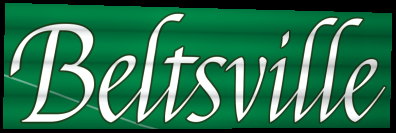
Beltsville